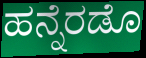
ಹನ್ನೆರಡೊ